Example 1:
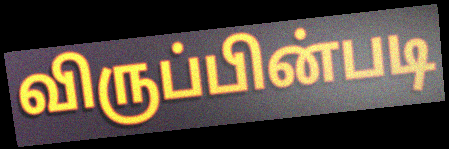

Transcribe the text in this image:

விருப்பின்படி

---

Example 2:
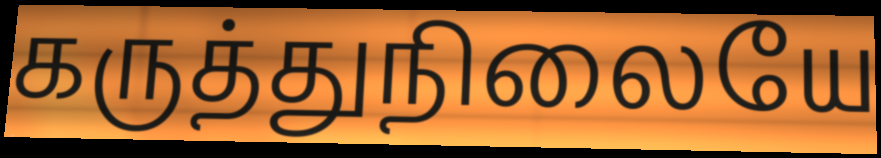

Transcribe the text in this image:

கருத்துநிலையே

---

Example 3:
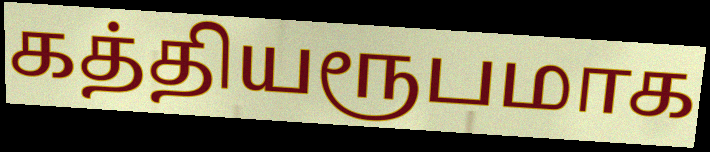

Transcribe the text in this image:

கத்தியரூபமாக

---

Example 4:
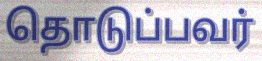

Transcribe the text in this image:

தொடுப்பவர்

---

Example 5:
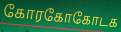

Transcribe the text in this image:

கோரகோகோடக